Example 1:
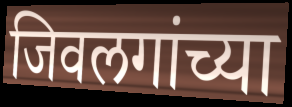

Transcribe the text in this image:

जिवलगांच्या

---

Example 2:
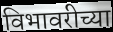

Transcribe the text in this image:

विभावरीच्या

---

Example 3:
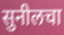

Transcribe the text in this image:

सुनीलचा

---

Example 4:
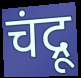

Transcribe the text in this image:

चंद्रू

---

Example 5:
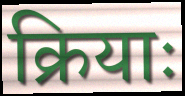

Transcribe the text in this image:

क्रियाः